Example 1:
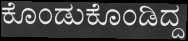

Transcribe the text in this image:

ಕೊಂಡುಕೊಂಡಿದ್ದ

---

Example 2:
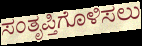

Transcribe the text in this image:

ಸಂತೃಪ್ತಿಗೊಳಿಸಲು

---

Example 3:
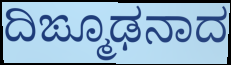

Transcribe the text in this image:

ದಿಙ್ಮೂಢನಾದ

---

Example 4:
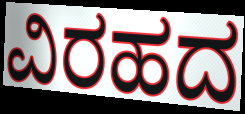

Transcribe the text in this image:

ವಿರಹದ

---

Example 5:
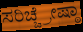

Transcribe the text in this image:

ಸರಿಚ್ಚ್ರೇಷ್ಠಾ